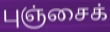
புஞ்சைக்